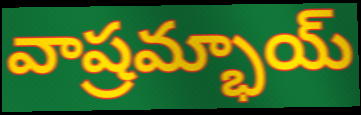
వాష్రమ్భాయ్